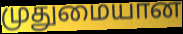
முதுமையான